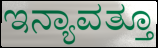
ಇನ್ಯಾವತ್ತೂ